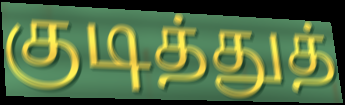
குடித்துத்